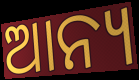
ଆନ୍ୟ